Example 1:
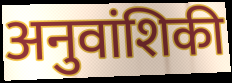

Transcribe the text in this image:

अनुवांशिकी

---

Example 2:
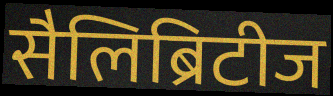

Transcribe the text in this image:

सैलिब्रिटीज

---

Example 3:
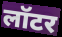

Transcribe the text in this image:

लॉटर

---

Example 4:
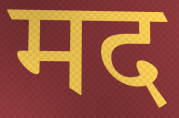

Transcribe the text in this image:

मद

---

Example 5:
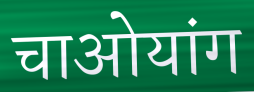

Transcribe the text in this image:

चाओयांग